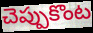
చెప్పుకొంట